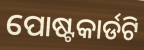
ପୋଷ୍ଟକାର୍ଡଟି